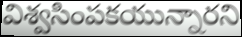
విశ్వసింపకయున్నారని